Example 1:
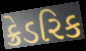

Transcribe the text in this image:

ક્રેડરિક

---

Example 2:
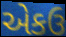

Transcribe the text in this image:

એકઉ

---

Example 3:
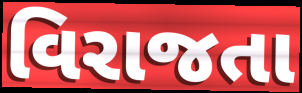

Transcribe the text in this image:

વિરાજતા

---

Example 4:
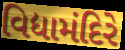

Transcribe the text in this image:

વિદ્યામંદિરે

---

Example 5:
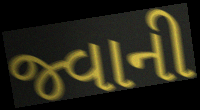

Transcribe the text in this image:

જ્વાની